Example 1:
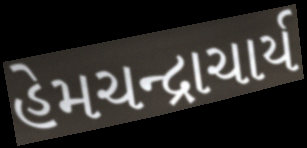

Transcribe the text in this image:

હેમચન્દ્રાચાર્ય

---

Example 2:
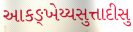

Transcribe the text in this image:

આકઙ્ખેય્યસુત્તાદીસુ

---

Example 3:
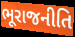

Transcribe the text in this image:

ભૂરાજનીતિ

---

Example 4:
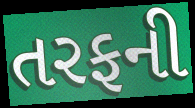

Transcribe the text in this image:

તરફની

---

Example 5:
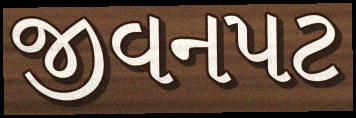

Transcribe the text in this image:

જીવનપટ